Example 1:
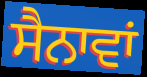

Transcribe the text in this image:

ਸੈਨਾਵਾਂ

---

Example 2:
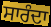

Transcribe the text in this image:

ਸਾਰੰਦਾ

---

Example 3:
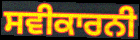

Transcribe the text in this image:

ਸਵੀਕਾਰਨੀ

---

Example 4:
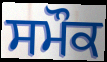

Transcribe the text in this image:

ਸਮੌਕ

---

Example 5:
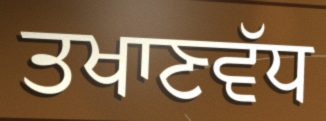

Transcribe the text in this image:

ਤਖਾਣਵੱਧ